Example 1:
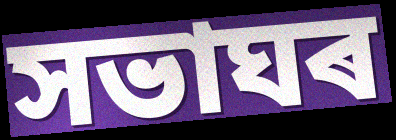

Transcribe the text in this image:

সভাঘৰ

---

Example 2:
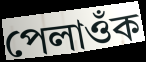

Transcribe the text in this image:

পেলাওঁক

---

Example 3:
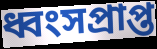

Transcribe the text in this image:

ধ্বংসপ্ৰাপ্ত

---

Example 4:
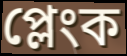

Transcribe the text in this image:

প্লেংক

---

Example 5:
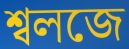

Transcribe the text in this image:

শ্বলজে